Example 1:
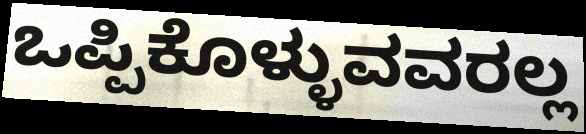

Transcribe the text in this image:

ಒಪ್ಪಿಕೊಳ್ಳುವವರಲ್ಲ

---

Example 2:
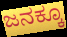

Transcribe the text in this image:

ಜನಕ್ಕೂ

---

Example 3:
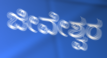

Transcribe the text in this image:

ಜೀವೇಶ್ವರ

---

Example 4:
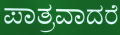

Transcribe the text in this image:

ಪಾತ್ರವಾದರೆ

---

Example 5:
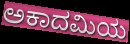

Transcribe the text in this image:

ಅಕಾದಮಿಯ